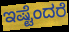
ಇಷ್ಟೆಂದರೆ